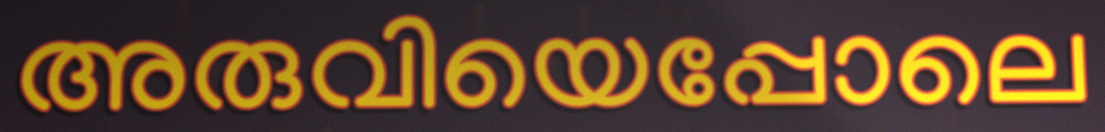
അരുവിയെപ്പോലെ